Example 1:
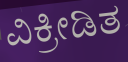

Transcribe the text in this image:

ವಿಕ್ರೀಡಿತ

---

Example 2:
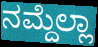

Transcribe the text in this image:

ನಮ್ದೆಲ್ಲಾ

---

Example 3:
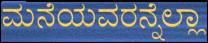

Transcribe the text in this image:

ಮನೆಯವರನ್ನೆಲ್ಲಾ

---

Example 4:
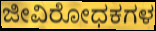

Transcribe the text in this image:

ಜೀವಿರೋಧಕಗಳ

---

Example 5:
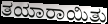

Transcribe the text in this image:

ತಯಾರಾಯಿತು